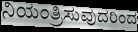
ನಿಯಂತ್ರಿಸುವುದರಿಂದ